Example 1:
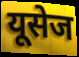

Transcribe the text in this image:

यूसेज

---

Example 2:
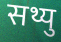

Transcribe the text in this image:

सथ्यु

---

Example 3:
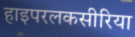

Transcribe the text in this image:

हाइपरलकसीरिया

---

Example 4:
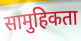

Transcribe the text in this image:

सामुहिकता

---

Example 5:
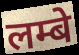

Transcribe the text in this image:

लम्बे